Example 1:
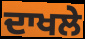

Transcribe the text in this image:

ਦਾਖਲੇ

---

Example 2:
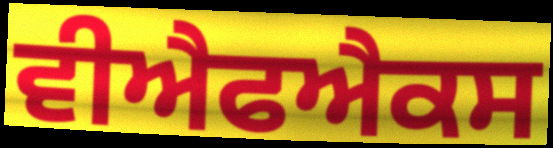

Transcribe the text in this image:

ਵੀਐਫਐਕਸ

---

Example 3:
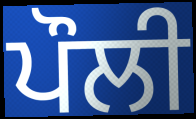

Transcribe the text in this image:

ਪੌਲੀ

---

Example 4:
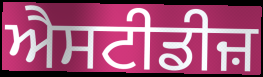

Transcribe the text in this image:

ਐਸਟੀਡੀਜ਼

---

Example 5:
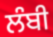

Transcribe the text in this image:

ਲੰਬੀ